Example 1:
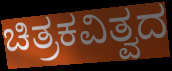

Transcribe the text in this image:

ಚಿತ್ರಕವಿತ್ವದ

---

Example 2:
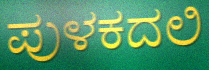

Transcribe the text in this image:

ಪುಳಕದಲಿ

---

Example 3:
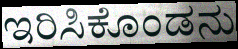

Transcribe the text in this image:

ಇರಿಸಿಕೊಂಡನು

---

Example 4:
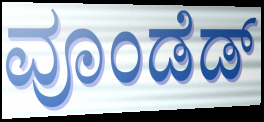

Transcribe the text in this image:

ವೂಂಡೆಡ್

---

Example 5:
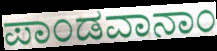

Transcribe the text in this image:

ಪಾಂಡವಾನಾಂ